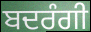
ਬਦਰੰਗੀ